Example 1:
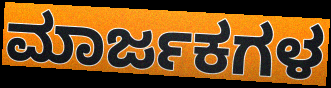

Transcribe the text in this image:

ಮಾರ್ಜಕಗಳ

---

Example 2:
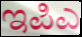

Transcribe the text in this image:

ಇಪಿಎ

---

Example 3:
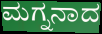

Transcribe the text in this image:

ಮಗ್ನನಾದ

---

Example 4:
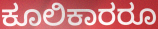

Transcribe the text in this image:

ಕೂಲಿಕಾರರೂ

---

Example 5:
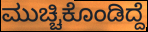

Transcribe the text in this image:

ಮುಚ್ಚಿಕೊಂಡಿದ್ದೆ